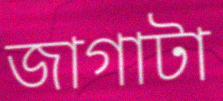
জাগাটা